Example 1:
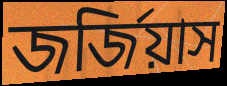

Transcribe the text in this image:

জর্জিয়াস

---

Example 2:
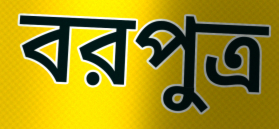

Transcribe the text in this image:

বরপুত্র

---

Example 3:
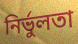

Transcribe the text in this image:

নির্ভুলতা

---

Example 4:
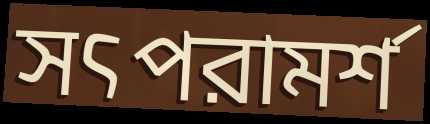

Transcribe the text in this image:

সৎপরামর্শ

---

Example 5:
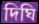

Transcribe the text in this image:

দিঘি